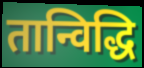
तान्विद्धि